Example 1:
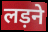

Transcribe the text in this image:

लड़ने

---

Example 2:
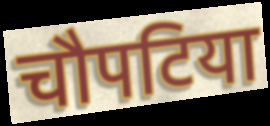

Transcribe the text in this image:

चौपटिया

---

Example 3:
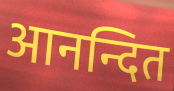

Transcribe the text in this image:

आनन्दित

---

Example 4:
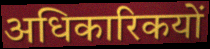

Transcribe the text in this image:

अधिकारिकयों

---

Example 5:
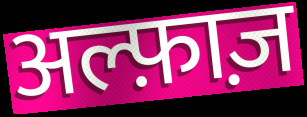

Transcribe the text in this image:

अल्फ़ाज़